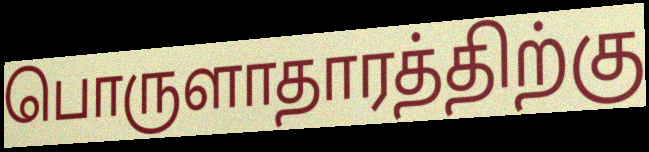
பொருளாதாரத்திற்கு